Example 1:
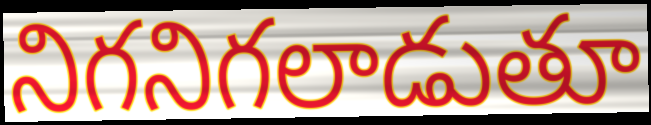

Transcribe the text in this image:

నిగనిగలాడుతూ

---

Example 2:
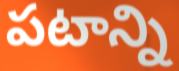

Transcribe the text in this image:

పటాన్ని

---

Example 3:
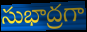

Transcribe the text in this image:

సుభాద్రగా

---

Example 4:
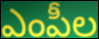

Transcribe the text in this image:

ఎంపీల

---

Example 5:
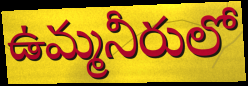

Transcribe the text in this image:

ఉమ్మనీరులో